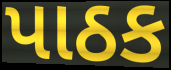
પાઠક